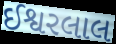
ઈશ્વરલાલ